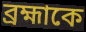
ব্রহ্মাকে